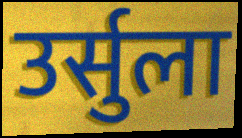
उर्सुला